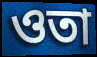
ওতা